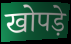
खोपड़े